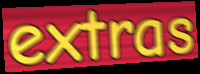
extras